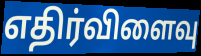
எதிர்விளைவு